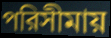
পরিসীমায়